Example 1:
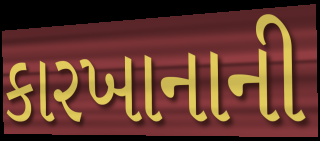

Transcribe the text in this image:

કારખાનાની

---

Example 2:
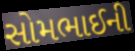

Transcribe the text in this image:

સોમભાઈની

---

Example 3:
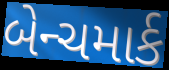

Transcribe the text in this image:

બેન્ચમાર્ક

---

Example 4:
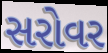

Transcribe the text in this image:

સરોવર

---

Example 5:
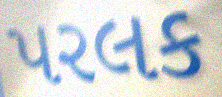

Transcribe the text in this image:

પરલક